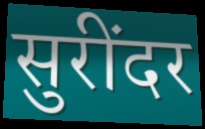
सुरींदर